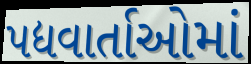
પદ્યવાર્તાઓમાં